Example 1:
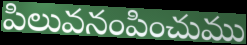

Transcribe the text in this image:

పిలువనంపించుము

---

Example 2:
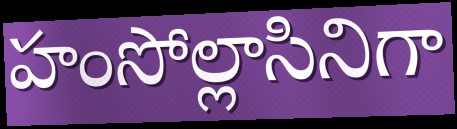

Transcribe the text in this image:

హంసోల్లాసినిగా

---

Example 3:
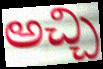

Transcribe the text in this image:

అచ్చి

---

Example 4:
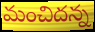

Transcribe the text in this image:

మంచిదన్న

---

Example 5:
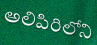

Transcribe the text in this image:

అలిపిరిలోని